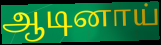
ஆடினாய்